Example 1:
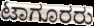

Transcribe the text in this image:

ಟಾಗೂರರು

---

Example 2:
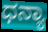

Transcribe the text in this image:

ಧನ್ಯಾ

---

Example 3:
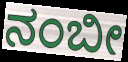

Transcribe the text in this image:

ನಂಬೀ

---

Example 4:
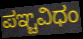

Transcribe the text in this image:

ಪಞ್ಚವಿಧಂ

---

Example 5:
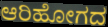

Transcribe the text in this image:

ಆರಿಹೋಗದ